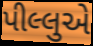
પીલ્લુએ